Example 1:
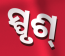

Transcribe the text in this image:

ସ୍ପୃଶ୍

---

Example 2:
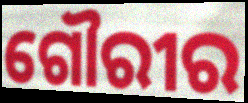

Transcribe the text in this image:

ଗୌରୀର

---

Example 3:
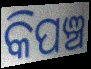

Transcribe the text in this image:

କିପଞ୍ଚ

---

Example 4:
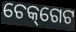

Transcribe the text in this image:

ଚେକ୍‌ଗେଟ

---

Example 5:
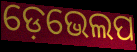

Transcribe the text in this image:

ଡ଼େଭେଲପ